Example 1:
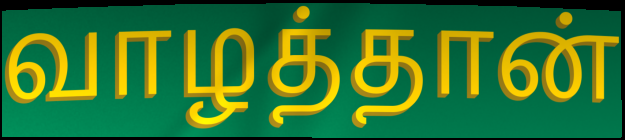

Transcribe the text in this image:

வாழத்தான்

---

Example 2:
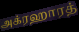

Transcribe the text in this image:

அக்ரஹாரத்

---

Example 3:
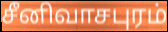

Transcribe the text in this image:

சீனிவாசபுரம்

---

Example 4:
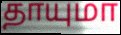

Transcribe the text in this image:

தாயுமா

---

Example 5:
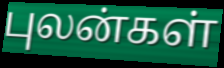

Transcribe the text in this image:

புலன்கள்